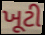
ખૂટી